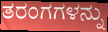
ತರಂಗಗಳನ್ನು